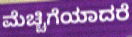
ಮೆಚ್ಚಿಗೆಯಾದರೆ